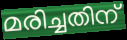
മരിച്ചതിന്